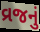
વ્રજનું